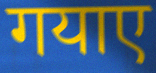
गयाए